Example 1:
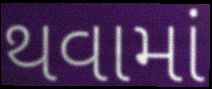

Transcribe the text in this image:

થવામાં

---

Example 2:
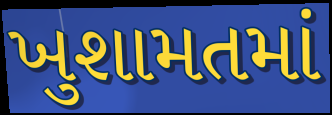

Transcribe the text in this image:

ખુશામતમાં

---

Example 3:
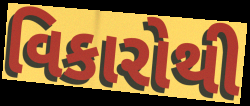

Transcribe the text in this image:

વિકારોથી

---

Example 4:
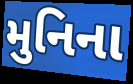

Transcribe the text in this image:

મુનિના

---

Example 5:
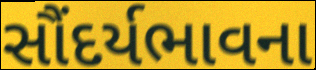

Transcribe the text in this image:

સૌંદર્યભાવના